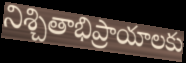
నిశ్చితాభిప్రాయాలకు